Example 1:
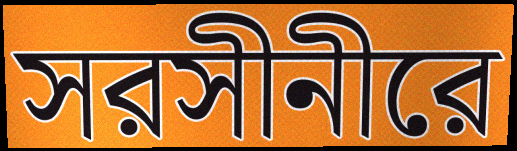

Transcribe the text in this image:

সরসীনীরে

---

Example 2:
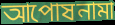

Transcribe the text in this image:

আপোষনামা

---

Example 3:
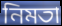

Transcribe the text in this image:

নিমতা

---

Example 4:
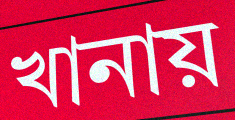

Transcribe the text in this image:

খানায়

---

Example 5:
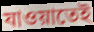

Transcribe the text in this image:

যাওয়াতেই